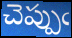
చెప్పుఁ